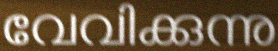
വേവിക്കുന്നു